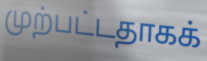
முற்பட்டதாகக்